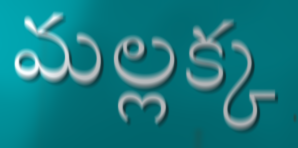
మల్లక్క